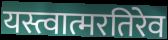
यस्त्वात्मरतिरेव